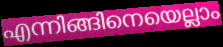
എന്നിങ്ങിനെയെല്ലാം